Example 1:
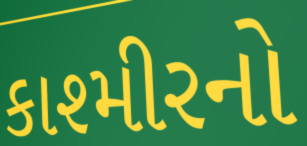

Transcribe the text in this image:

કાશ્મીરનો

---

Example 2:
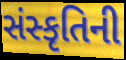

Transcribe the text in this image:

સંસ્કૃતિની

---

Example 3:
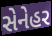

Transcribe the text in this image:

સેનેહર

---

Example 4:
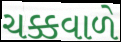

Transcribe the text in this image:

ચક્કવાળે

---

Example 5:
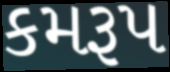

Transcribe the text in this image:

કમરૂપ